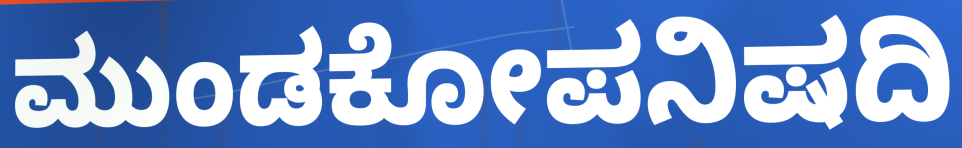
ಮುಂಡಕೋಪನಿಷದಿ